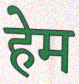
हेम